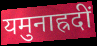
यमुनाह्रदीं